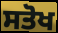
ਸਤੋਖ